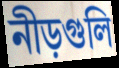
নীড়গুলি